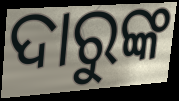
ଦାରୁଙ୍କ